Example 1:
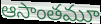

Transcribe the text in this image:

ఆసాంతమూ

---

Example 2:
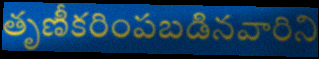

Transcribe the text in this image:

తృణీకరింపబడినవారిని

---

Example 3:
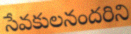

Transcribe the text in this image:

సేవకులనందరిని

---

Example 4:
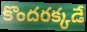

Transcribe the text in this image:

కొందరక్కడే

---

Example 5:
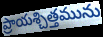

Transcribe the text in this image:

ప్రాయశ్చిత్తమును